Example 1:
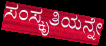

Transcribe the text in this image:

ಸಂಸ್ಕೃತಿಯನ್ನೇ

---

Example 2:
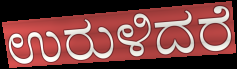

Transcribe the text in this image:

ಉರುಳಿದರೆ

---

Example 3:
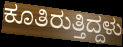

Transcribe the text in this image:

ಕೂತಿರುತ್ತಿದ್ದಳು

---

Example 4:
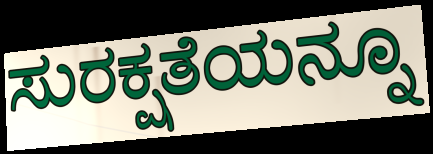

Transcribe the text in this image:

ಸುರಕ್ಷತೆಯನ್ನೂ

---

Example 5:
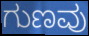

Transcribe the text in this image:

ಗುಣವು